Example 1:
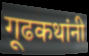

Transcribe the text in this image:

गूढकथांनी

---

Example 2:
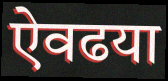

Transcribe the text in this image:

ऐवढया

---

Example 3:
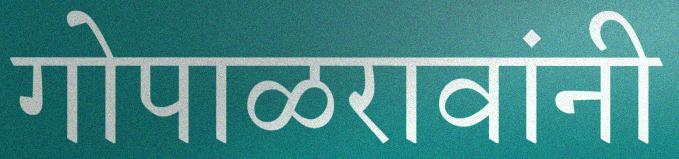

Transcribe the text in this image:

गोपाळरावांनी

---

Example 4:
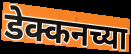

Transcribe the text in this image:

डेक्कनच्या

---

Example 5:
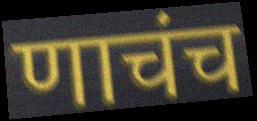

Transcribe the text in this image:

णाचंच